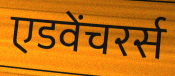
एडवेंचरर्स